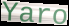
Yaro